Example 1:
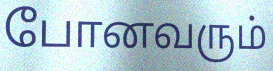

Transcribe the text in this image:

போனவரும்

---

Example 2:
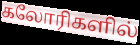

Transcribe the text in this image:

கலோரிகளில்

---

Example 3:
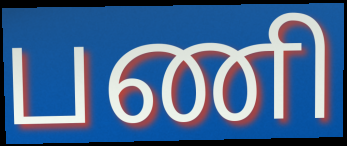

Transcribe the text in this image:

பணி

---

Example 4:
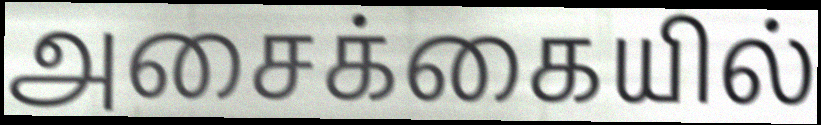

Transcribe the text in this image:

அசைக்கையில்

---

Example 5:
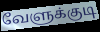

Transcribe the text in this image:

வேளுக்குடி